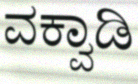
ವಕ್ವಾಡಿ